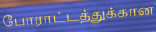
போராட்டத்துக்கான